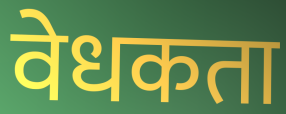
वेधकता